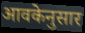
आवकेनुसार